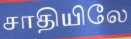
சாதியிலே